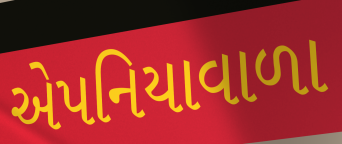
એપનિયાવાળા